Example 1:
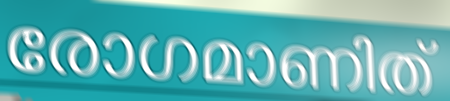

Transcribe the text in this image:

രോഗമാണിത്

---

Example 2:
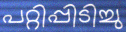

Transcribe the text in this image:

പറ്റിപ്പിടിച്ചു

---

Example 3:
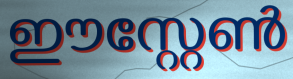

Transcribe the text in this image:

ഈസ്റ്റേൺ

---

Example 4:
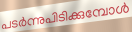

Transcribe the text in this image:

പടർന്നുപിടിക്കുമ്പോൾ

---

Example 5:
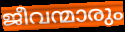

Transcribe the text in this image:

ജീവന്മാരും